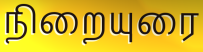
நிறையுரை